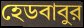
হেডবাবুর